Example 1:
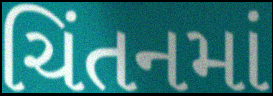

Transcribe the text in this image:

ચિંતનમાં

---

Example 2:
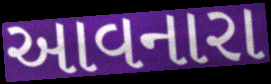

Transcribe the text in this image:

આવનારા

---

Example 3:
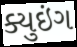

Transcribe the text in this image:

ક્યુઇંગ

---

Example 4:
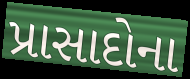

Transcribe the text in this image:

પ્રાસાદોના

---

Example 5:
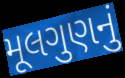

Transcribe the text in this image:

મૂલગુણનું